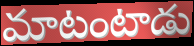
మాటంటాడు